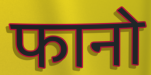
फानो